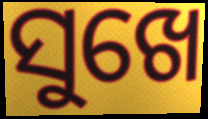
ସୁଖେ